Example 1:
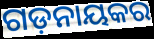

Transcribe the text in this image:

ଗଡ଼ନାୟକର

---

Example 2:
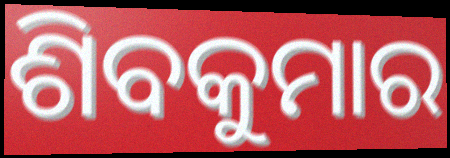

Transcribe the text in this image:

ଶିବକୁମାର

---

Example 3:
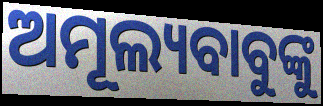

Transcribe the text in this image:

ଅମୂଲ୍ୟବାବୁଙ୍କୁ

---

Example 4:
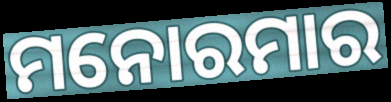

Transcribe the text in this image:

ମନୋରମାର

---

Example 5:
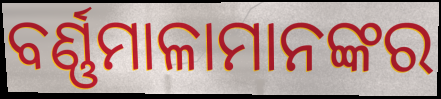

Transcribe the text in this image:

ବର୍ଣ୍ଣମାଳାମାନଙ୍କର